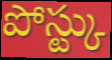
పోస్ట్కు